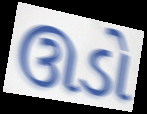
ઊડો